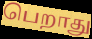
பெறாது